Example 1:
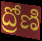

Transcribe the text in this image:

ద్రోణి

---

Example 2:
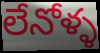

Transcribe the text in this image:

లేనోళ్ళ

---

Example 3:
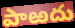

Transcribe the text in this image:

పాఱదు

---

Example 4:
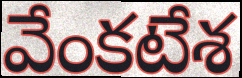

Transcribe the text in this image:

వేంకటేశ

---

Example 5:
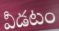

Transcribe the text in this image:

వీడటం